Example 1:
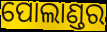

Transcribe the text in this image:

ପୋଲାଣ୍ଡର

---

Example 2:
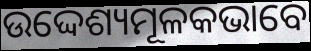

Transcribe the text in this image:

ଉଦ୍ଦେଶ୍ୟମୂଳକଭାବେ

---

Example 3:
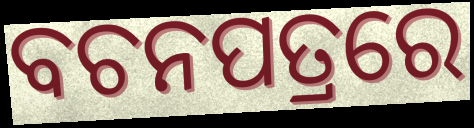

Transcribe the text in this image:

ବଚନପତ୍ରରେ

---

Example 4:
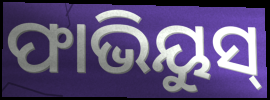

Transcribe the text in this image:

ଫାଭିୟୁସ୍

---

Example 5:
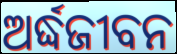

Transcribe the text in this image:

ଅର୍ଦ୍ଧଜୀବନ